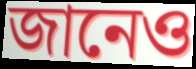
জানেও